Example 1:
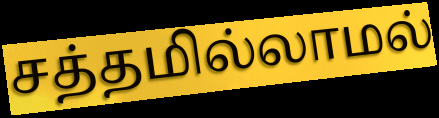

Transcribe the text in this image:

சத்தமில்லாமல்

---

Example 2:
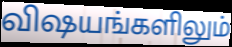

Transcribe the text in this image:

விஷயங்களிலும்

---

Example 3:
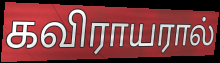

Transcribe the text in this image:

கவிராயரால்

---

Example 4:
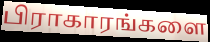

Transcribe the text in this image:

பிராகாரங்களை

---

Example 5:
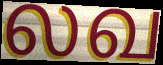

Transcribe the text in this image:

லவ